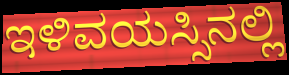
ಇಳಿವಯಸ್ಸಿನಲ್ಲಿ